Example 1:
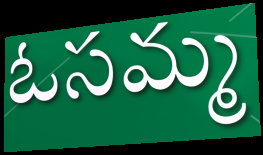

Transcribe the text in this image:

ఓసమ్మ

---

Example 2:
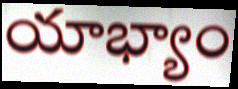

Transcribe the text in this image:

యాభ్యాం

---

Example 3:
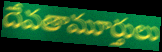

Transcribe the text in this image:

దేవతామూర్తులు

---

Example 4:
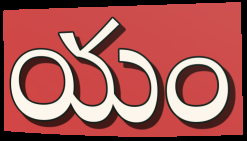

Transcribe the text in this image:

యం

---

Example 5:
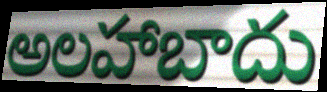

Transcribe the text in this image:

అలహాబాదు